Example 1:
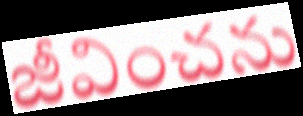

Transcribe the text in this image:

జీవించను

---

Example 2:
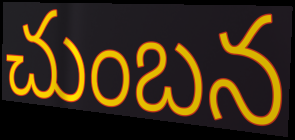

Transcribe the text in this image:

చుంబన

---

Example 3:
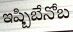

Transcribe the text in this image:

ఇష్బిబేనోబ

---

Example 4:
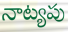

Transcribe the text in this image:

నాట్యపు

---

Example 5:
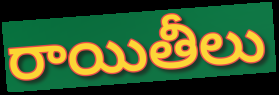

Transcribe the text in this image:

రాయితీలు